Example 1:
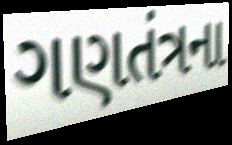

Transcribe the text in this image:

ગણતંત્રના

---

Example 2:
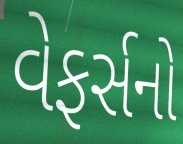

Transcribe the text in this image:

વેફર્સનો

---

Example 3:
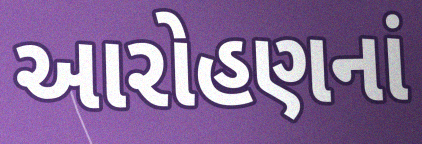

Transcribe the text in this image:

આરોહણનાં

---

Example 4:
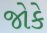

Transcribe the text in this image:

જોકે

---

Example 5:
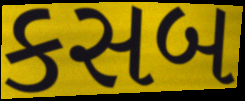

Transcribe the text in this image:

કસબ